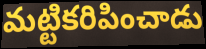
మట్టికరిపించాడు